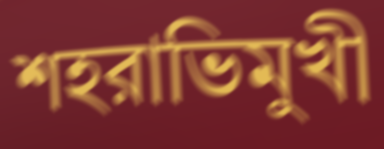
শহরাভিমুখী